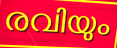
രവിയും